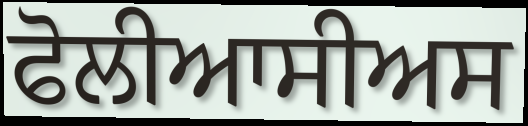
ਫੋਲੀਆਸੀਅਸ